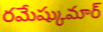
రమేష్కుమార్